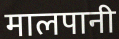
मालपानी